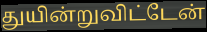
துயின்றுவிட்டேன்